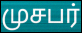
முசபர்